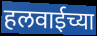
हलवाईच्या